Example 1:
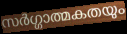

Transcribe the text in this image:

സർഗ്ഗാത്മകതയും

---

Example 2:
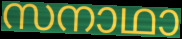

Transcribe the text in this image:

സനാഥാ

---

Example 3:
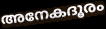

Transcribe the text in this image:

അനേകദൂരം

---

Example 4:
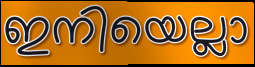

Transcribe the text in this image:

ഇനിയെല്ലാ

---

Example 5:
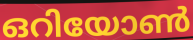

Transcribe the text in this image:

ഒറിയോൺ